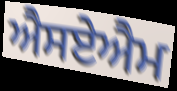
ਐਸਏਐਮ